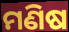
ମଣିଷ